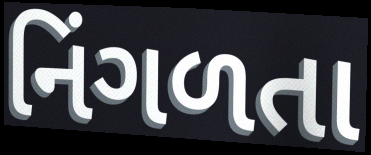
નિંગળતા